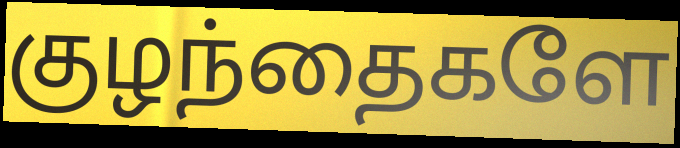
குழந்தைகளே